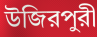
উজিরপুরী